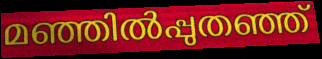
മഞ്ഞിൽപ്പുതഞ്ഞ്